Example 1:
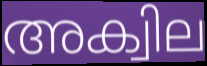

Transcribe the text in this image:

അക്വില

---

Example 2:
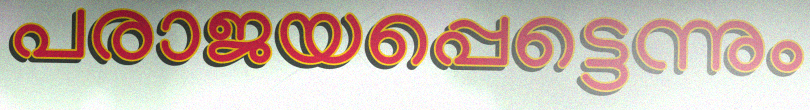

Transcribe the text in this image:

പരാജയപ്പെട്ടെന്നും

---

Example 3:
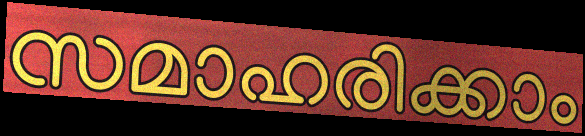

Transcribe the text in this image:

സമാഹരിക്കാം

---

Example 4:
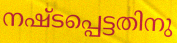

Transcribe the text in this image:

നഷ്ടപ്പെട്ടതിനു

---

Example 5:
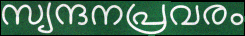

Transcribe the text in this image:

സ്യന്ദനപ്രവരം